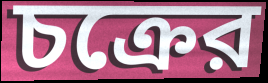
চক্রের